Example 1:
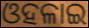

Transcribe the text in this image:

ଓହଳାଇ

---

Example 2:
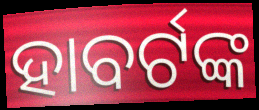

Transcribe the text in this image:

ହାବର୍ଟଙ୍କ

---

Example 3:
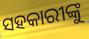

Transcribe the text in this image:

ସହକାରୀଙ୍କୁ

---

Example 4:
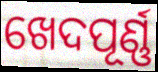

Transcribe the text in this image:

ଖେଦପୂର୍ଣ୍ଣ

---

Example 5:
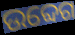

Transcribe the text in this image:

ଉବ୍ଦେଗ